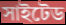
সাইটেড